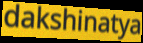
dakshinatya